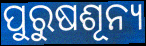
ପୁରୁଷଶୂନ୍ୟ